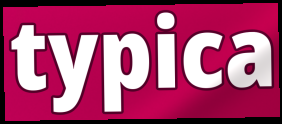
typica